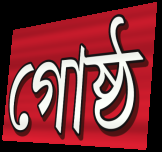
গোষ্ঠ